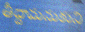
తీద్దామనుకుని